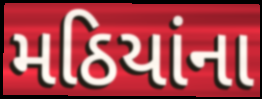
મઠિયાંના